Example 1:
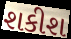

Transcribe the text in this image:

શકીશ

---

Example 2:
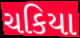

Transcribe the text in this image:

ચકિયા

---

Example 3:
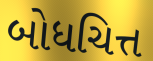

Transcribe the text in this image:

બોધચિત્ત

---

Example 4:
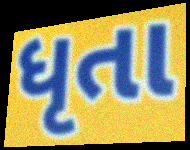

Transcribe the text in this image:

ધૃતા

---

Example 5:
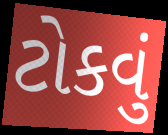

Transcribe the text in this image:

ટોકવું